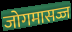
जोगमासज्ज